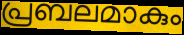
പ്രബലമാകും